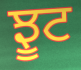
ਝੂਟ